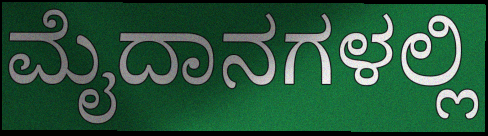
ಮೈದಾನಗಳಲ್ಲಿ